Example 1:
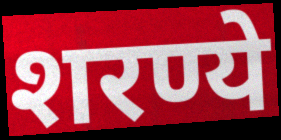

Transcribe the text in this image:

शरण्ये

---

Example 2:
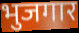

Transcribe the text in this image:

भुजगार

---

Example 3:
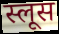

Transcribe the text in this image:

स्लूस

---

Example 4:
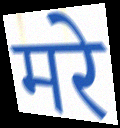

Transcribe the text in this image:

मरे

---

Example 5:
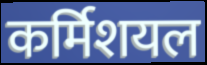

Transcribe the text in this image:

कर्मिशयल